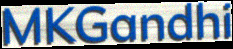
MKGandhi